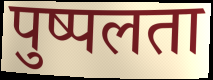
पुष्पलता